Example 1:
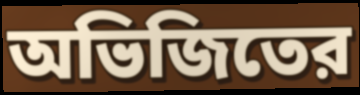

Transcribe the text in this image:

অভিজিতের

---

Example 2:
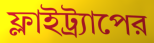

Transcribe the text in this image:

ফ্লাইট্র্যাপের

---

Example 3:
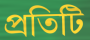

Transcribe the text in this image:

প্রতিটি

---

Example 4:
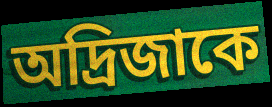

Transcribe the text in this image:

অদ্রিজাকে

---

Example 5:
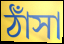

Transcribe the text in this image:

ঠাঁসা